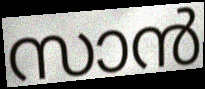
സാൻ